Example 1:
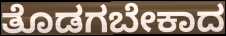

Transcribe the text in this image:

ತೊಡಗಬೇಕಾದ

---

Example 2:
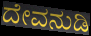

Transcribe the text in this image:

ದೇವನುಡಿ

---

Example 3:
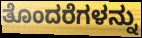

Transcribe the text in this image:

ತೊಂದರೆಗಳನ್ನು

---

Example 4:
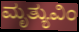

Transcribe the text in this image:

ಮೃತ್ಯುವಿಂ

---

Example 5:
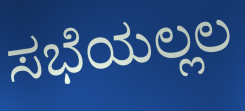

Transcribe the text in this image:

ಸಭೆಯಲ್ಲಲ